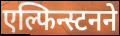
एल्फिन्स्टनने